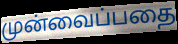
முன்வைப்பதை